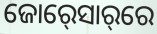
ଜୋର୍‍ସୋର୍‌ରେ